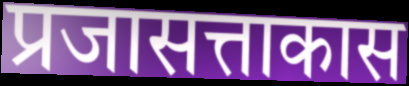
प्रजासत्ताकास